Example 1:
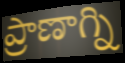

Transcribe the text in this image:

ప్రాణాగ్ని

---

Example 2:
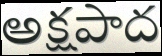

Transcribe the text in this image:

అక్షపాద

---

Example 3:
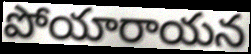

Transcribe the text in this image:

పోయారాయన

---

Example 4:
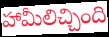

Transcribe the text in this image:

హామీలిచ్చింది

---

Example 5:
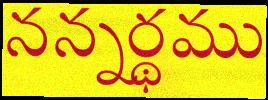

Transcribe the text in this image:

నన్నర్థము